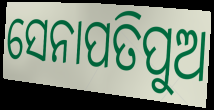
ସେନାପତିପୁଅ